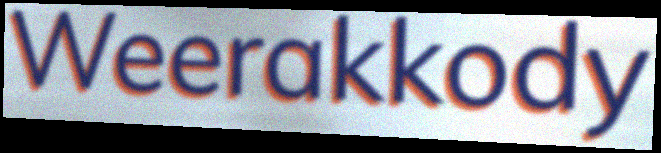
Weerakkody